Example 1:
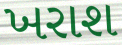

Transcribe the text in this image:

ખરાશ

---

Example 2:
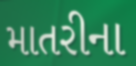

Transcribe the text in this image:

માતરીના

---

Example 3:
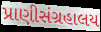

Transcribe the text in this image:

પ્રાણીસંગ્રહાલય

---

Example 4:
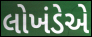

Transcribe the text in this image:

લોખંડેએ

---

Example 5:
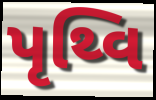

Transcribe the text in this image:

પૃથ્વિ